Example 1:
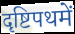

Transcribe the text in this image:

दृष्टिपथमें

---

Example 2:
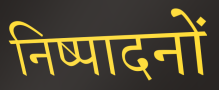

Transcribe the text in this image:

निष्पादनों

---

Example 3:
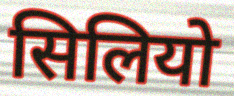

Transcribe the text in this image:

सिलियो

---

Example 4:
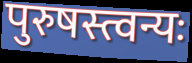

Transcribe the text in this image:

पुरुषस्त्वन्यः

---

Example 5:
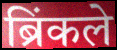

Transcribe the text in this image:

ब्रिंकले